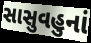
સાસુવહુનાં